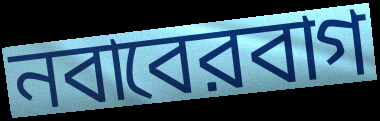
নবাবেরবাগ